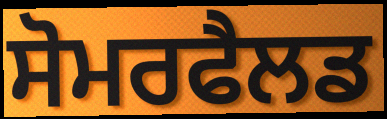
ਸੋਮਰਫੈਲਡ